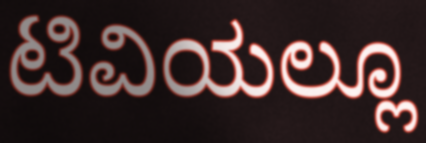
ಟಿವಿಯಲ್ಲೂ